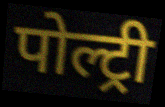
पोल्ट्री